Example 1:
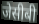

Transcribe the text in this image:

जेसीबी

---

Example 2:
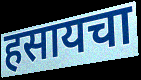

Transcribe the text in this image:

हसायचा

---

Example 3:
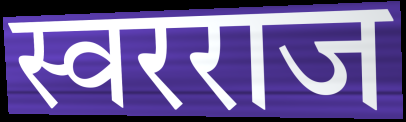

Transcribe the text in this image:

स्वरराज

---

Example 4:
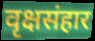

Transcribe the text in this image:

वृक्षसंहार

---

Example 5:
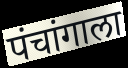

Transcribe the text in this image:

पंचांगाला